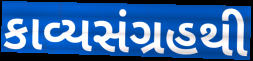
કાવ્યસંગ્રહથી